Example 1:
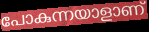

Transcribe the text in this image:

പോകുന്നയാളാണ്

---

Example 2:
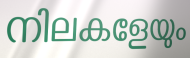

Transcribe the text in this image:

നിലകളേയും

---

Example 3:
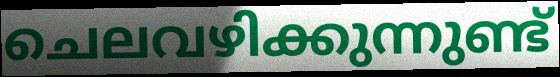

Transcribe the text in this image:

ചെലവഴിക്കുന്നുണ്ട്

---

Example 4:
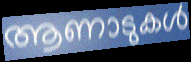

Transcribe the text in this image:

ആണാടുകൾ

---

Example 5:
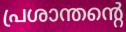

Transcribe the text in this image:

പ്രശാന്തന്റെ